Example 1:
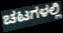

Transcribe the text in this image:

ಚಟಗಳಲ್ಲಿ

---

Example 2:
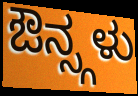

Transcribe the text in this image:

ಔನ್ಸ್ಗಳು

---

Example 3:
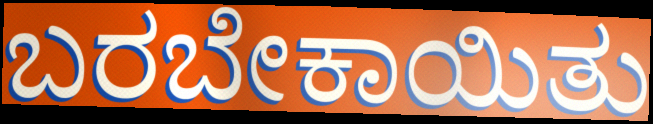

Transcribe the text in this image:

ಬರಬೇಕಾಯಿತು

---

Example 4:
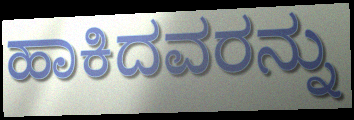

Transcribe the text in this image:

ಹಾಕಿದವರನ್ನು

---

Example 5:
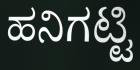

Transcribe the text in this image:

ಹನಿಗಟ್ಟಿ